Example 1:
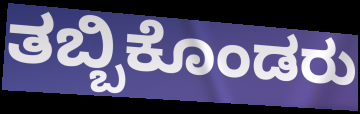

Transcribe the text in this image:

ತಬ್ಬಿಕೊಂಡರು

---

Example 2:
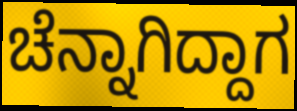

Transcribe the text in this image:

ಚೆನ್ನಾಗಿದ್ದಾಗ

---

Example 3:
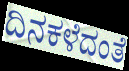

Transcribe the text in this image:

ದಿನಕಳೆದಂತೆ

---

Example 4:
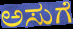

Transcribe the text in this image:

ಅಸುಗೆ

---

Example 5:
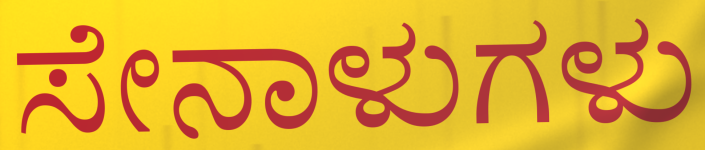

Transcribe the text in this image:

ಸೇನಾಳುಗಳು